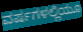
ವರ್ಷಗಳಲ್ಲಿಯೂ